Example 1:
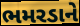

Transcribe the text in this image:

ભમરડાને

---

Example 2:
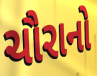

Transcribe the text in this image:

ચૌરાનો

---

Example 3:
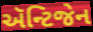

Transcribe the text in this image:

ઍન્ટિજેન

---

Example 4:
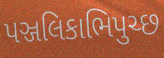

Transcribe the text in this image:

પઞ્જલિકાભિપુચ્છ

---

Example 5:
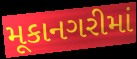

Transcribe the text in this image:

મૂકાનગરીમાં